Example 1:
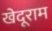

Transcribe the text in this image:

खेदूराम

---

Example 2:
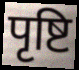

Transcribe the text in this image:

पृष्टि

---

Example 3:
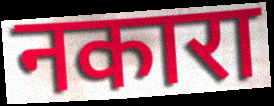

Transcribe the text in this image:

नकारा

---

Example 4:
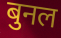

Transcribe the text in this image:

बुनल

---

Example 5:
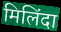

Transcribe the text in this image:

मिलिंदा